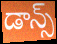
డాన్స్